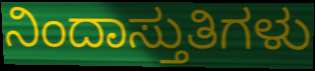
ನಿಂದಾಸ್ತುತಿಗಳು